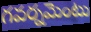
గవర్నమెంటు